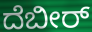
ದೆಬೀರ್